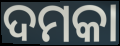
ଦମକା